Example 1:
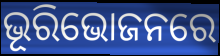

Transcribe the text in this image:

ଭୂରିଭୋଜନରେ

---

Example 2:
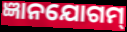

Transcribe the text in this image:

ଜ୍ଞାନଯୋଗମ୍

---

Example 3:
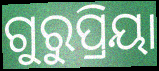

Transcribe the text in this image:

ଗୁରୁପ୍ରିୟା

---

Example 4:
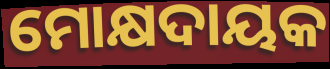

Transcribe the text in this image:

ମୋକ୍ଷଦାୟକ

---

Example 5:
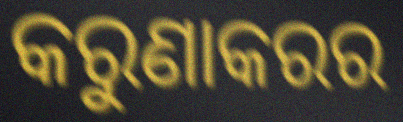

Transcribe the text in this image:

କରୁଣାକରର